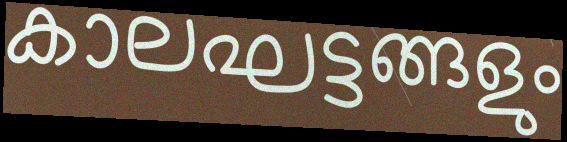
കാലഘട്ടങ്ങളും